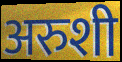
अरुशी